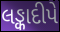
લઙ્કાદીપે